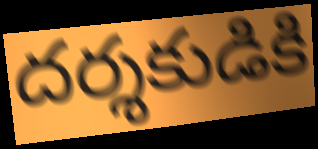
దర్శకుడికి